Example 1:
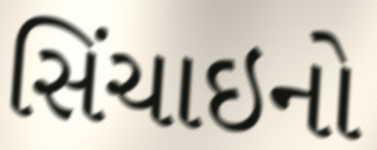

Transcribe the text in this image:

સિંચાઇનો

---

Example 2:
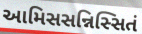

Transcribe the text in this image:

આમિસસન્નિસ્સિતં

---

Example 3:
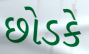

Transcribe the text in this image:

છોડકે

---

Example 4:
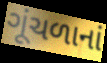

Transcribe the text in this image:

ગૂંચળાનાં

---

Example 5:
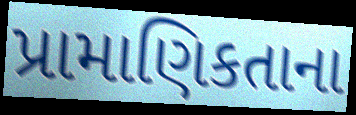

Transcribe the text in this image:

પ્રામાણિકતાના